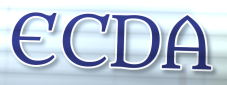
ECDA